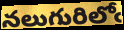
నలుగురిలోఁ